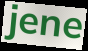
jene